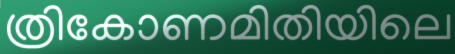
ത്രികോണമിതിയിലെ